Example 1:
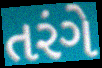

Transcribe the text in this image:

તરંગે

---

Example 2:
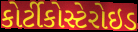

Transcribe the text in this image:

કોર્ટીકોસ્ટેરોઇડ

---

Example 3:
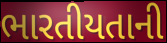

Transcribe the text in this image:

ભારતીયતાની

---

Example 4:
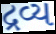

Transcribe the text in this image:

દ્રવ્ય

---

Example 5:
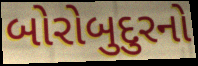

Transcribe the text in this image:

બોરોબુદુરનો